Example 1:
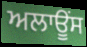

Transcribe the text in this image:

ਅਲਾਊੰਸ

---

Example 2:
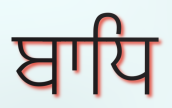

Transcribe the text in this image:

ਬਾਧਿ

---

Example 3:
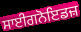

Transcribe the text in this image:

ਸਾਈਗਨੋਇਡਜ਼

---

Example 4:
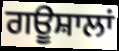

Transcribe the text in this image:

ਗਊਸ਼ਾਲਾਂ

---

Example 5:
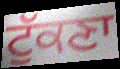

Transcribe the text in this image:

ਟੁੱਕਣਾ